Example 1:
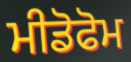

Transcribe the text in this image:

ਮੀਡੋਫੋਮ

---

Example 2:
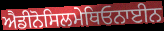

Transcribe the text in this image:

ਐਡੀਨੋਸਿਲਮੇਥਿਓਨਾਈਨ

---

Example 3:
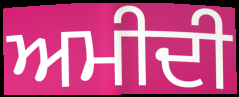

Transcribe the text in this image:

ਅਮੀਦੀ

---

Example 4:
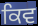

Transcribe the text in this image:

ਕਿਵ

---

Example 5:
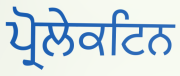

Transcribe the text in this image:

ਪ੍ਰੋਲੇਕਟਿਨ